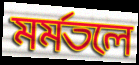
মর্মতলে